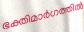
ഭക്തിമാർഗത്തിൽ